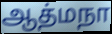
ஆத்மநா